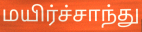
மயிர்ச்சாந்து